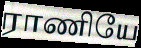
ராணியே